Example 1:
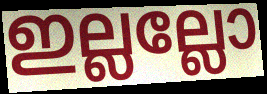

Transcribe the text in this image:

ഇല്ലല്ലോ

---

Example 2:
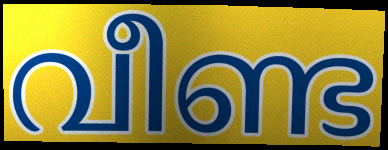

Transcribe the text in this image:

വീണ്ട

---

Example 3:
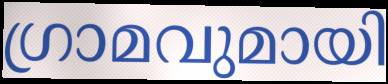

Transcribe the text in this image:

ഗ്രാമവുമായി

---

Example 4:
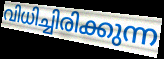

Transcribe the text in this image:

വിധിച്ചിരിക്കുന്ന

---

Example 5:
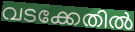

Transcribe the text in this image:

വടക്കേതിൽ